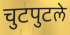
चुटपुटले